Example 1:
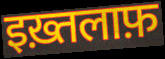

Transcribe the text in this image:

इख़्तलाफ़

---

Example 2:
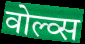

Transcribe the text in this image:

वोल्व्स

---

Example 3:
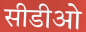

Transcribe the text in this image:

सीडीओ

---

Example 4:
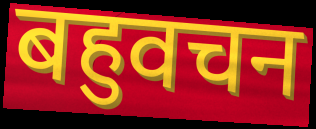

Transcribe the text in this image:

बहुवचन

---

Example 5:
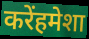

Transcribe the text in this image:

करेंहमेशा